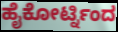
ಹೈಕೋರ್ಟ್ನಿಂದ